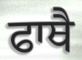
ਫਾਥੈ